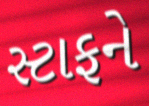
સ્ટાફને